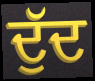
ਦੁੱਦ